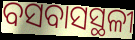
ବସବାସସ୍ଥଳୀ